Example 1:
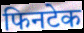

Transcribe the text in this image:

फिनटेक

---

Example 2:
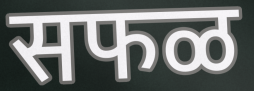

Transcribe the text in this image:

सफळ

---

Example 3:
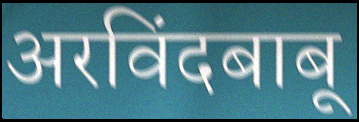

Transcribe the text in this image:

अरविंदबाबू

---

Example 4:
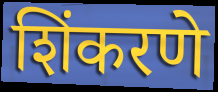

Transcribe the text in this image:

शिंकरणे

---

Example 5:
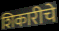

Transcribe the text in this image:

शिकारीचे